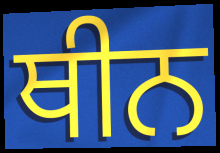
ਥੀਨ